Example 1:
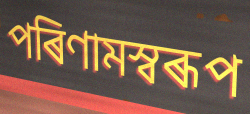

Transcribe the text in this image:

পৰিণামস্বৰূপ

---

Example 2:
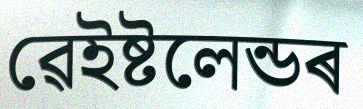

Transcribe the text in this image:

ৱেইষ্টলেন্ডৰ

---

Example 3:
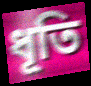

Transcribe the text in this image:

ধূতি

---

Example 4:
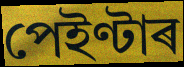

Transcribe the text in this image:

পেইণ্টাৰ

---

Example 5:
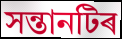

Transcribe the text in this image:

সন্তানটিৰ